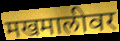
मखमालीवर